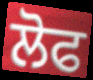
ਲੋਫ